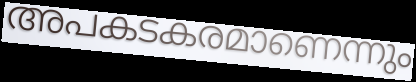
അപകടകരമാണെന്നും